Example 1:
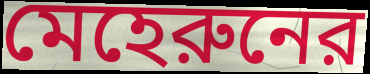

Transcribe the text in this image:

মেহেরুনের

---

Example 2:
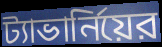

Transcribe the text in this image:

ট্যাভার্নিয়ের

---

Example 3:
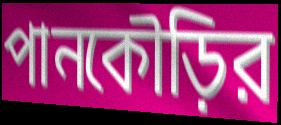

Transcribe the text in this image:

পানকৌড়ির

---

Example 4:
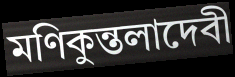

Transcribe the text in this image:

মণিকুন্তলাদেবী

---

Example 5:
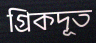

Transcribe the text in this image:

গ্রিকদূত